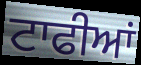
ਟਾਫੀਆਂ